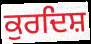
ਕੁਰਦਿਸ਼